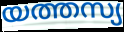
യത്തസ്യ